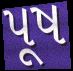
પૂષ